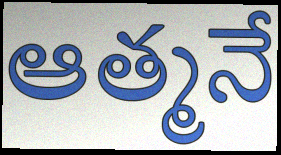
ఆత్మనే